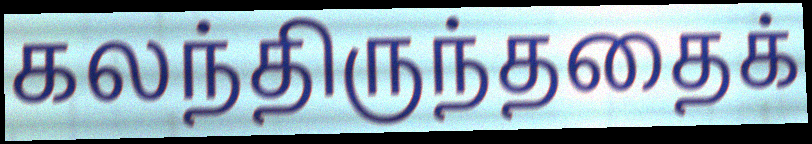
கலந்திருந்ததைக்